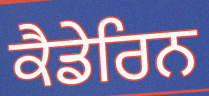
ਕੈਡੇਰਿਨ